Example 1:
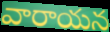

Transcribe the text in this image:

వారాయన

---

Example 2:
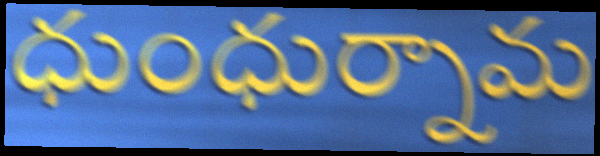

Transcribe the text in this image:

ధుంధుర్నామ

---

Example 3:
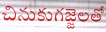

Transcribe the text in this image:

చినుకుగజ్జెలతో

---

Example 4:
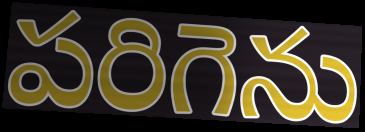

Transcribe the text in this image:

పరిగెను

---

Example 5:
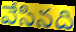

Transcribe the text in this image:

వేసినది